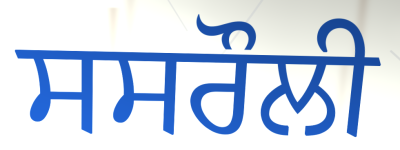
ਸਸਰੌਲੀ